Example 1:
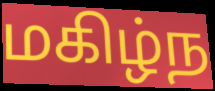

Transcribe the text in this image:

மகிழ்ந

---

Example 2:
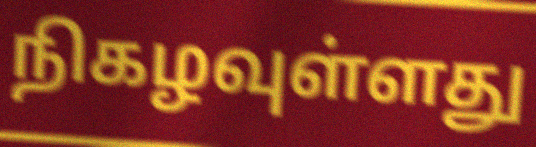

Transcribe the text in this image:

நிகழவுள்ளது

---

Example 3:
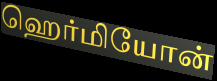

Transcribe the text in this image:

ஹெர்மியோன்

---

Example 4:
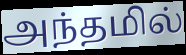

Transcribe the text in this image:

அந்தமில்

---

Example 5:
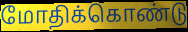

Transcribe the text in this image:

மோதிக்கொண்டு